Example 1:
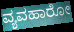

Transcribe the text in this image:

ವ್ಯವಹಾರೋ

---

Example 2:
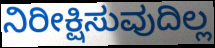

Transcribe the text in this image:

ನಿರೀಕ್ಷಿಸುವುದಿಲ್ಲ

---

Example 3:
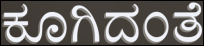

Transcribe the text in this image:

ಕೂಗಿದಂತೆ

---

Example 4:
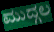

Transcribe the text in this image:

ಮುದ್ಗಲ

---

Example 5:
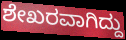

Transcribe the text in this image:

ಶೇಖರವಾಗಿದ್ದು